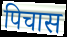
पिचास